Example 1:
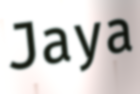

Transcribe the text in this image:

Jaya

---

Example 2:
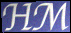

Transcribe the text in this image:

HM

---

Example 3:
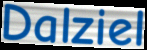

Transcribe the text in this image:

Dalziel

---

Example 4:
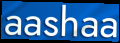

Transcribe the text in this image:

aashaa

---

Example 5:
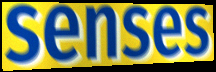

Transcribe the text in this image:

senses